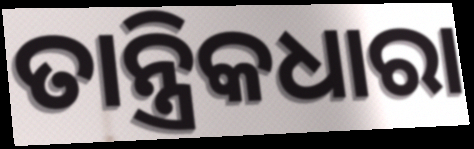
ତାନ୍ତ୍ରିକଧାରା